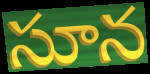
సూన